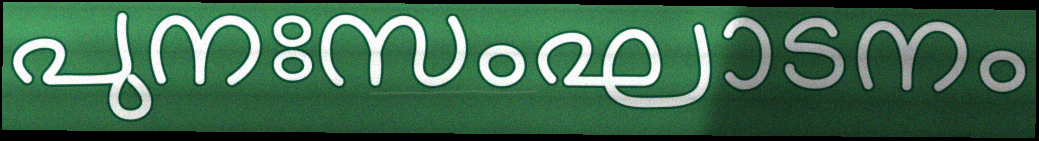
പുനഃസംഘാടനം